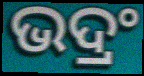
ଭଦ୍ରଂ